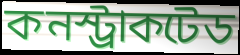
কনস্ট্রাকটেড